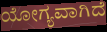
ಯೋಗ್ಯವಾಗಿದೆ